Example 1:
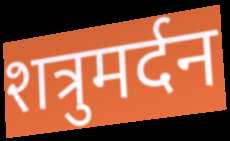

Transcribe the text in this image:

शत्रुमर्दन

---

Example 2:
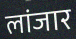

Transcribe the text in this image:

लांजार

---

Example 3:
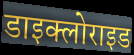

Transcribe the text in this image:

डाइक्लोराइड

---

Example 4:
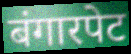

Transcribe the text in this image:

बंगारपेट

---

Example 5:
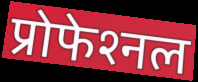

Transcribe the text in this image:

प्रोफेश्नल